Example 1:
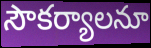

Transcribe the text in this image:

సౌకర్యాలనూ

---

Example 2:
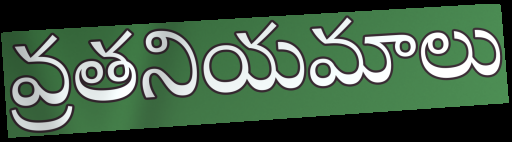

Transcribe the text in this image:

వ్రతనియమాలు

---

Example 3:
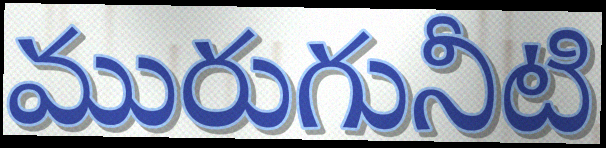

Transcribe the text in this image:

మురుగునీటి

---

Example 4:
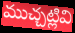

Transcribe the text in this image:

ముచ్చట్లివి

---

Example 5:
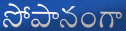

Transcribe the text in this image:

సోపానంగా